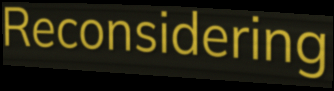
Reconsidering